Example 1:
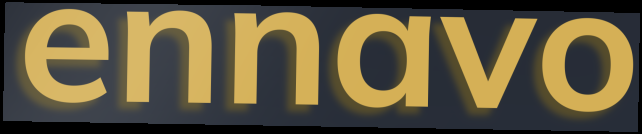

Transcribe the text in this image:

ennavo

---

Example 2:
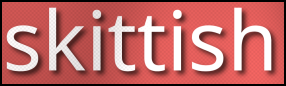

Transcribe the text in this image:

skittish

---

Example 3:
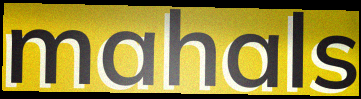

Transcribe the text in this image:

mahals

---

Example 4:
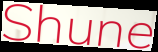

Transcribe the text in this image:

Shune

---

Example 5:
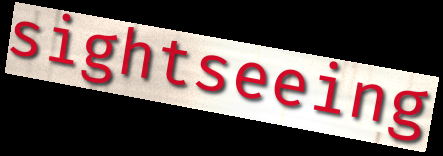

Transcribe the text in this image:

sightseeing